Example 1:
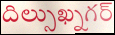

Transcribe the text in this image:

దిల్సుఖ్నగర్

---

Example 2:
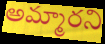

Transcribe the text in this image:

అమ్మారని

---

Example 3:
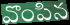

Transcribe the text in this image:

వొంపిన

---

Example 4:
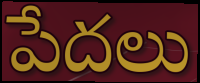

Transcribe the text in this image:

పేదలు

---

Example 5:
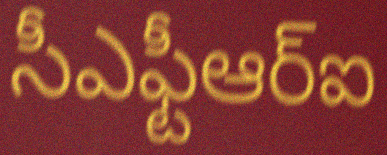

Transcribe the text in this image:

సీఎఫ్టీఆర్ఐ